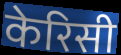
केरिसी